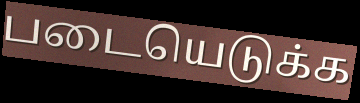
படையெடுக்க